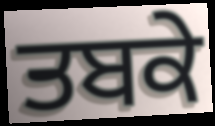
ਤਬਕੇ